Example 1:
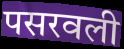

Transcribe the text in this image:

पसरवली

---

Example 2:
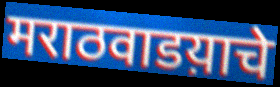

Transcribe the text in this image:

मराठवाडय़ाचे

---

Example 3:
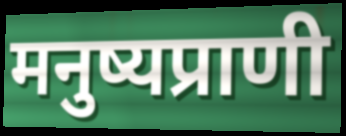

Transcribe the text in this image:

मनुष्यप्राणी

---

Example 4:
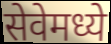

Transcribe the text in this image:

सेवेमध्ये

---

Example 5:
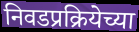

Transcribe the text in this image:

निवडप्रक्रियेच्या